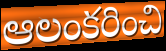
ఆలంకరించి